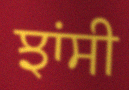
ਝਾਂਸੀ